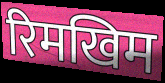
रिमखिम